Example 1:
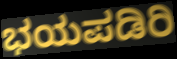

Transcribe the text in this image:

ಭಯಪಡಿರಿ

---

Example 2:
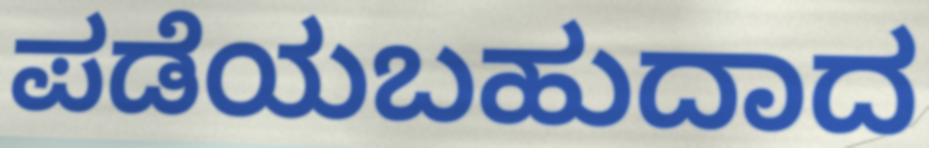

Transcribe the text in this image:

ಪಡೆಯಬಹುದಾದ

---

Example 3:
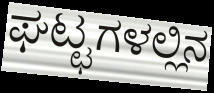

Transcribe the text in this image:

ಘಟ್ಟಗಳಲ್ಲಿನ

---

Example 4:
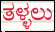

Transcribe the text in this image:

ತಳ್ಳಲು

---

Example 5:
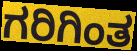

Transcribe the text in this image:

ಗರಿಗಿಂತ